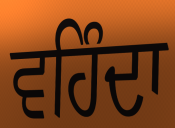
ਵਹਿੰਦਾ